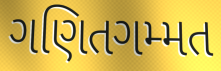
ગણિતગમ્મત